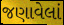
જણાવેલાં